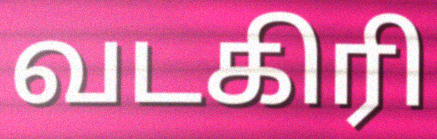
வடகிரி